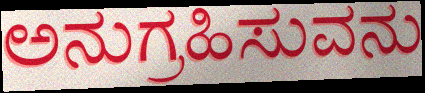
ಅನುಗ್ರಹಿಸುವನು